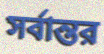
সর্বান্তর